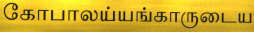
கோபாலய்யங்காருடைய